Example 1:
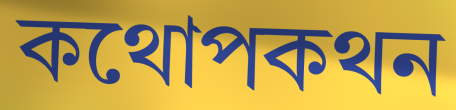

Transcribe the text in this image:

কথোপকথন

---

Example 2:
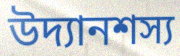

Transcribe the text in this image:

উদ্যানশস্য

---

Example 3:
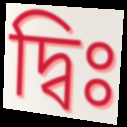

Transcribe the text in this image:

দ্বিঃ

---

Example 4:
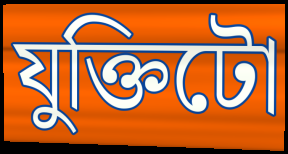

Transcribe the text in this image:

যুক্তিটো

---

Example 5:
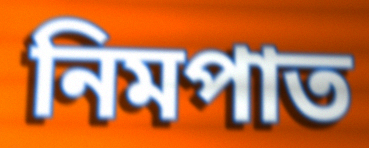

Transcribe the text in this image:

নিমপাত